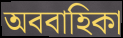
অববাহিকা